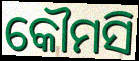
କୌମସି